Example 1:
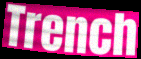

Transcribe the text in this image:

Trench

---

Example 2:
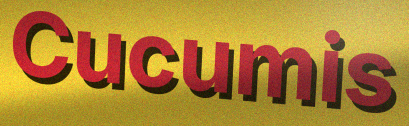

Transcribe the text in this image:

Cucumis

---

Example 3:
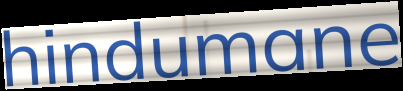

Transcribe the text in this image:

hindumane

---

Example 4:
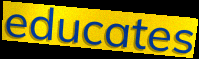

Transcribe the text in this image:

educates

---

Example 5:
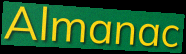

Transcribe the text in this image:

Almanac